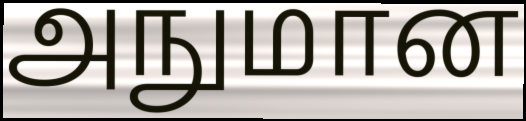
அநுமான